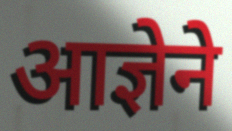
आज्ञेने